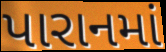
પારાનમાં